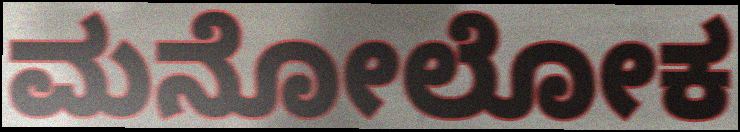
ಮನೋಲೋಕ